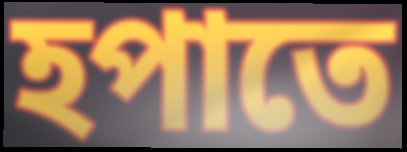
হপাতে